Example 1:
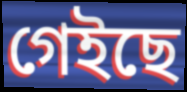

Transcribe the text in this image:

গেইছে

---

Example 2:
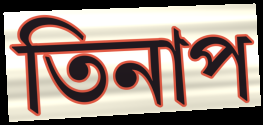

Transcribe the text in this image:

তিনাপ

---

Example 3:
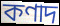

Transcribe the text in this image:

কণাদ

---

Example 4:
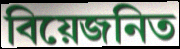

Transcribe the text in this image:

বিয়েজনিত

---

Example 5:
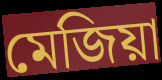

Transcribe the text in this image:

মেজিয়া